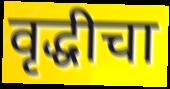
वृद्धीचा